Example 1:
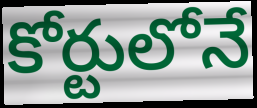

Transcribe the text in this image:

కోర్టులోనే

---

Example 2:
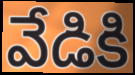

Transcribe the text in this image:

వేడికి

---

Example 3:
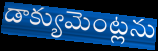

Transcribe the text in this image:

డాక్యుమెంట్లను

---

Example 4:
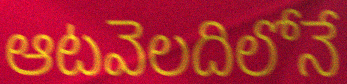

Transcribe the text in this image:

ఆటవెలదిలోనే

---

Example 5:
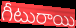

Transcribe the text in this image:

గీటురాయి